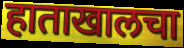
हाताखालचा